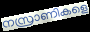
നസ്രാണികളെ